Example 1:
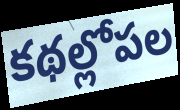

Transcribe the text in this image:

కథల్లోపల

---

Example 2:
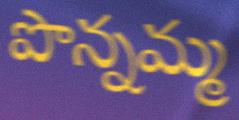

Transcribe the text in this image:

పొన్నమ్మ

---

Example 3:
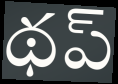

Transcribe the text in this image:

థప్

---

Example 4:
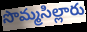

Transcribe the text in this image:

సొమ్మసిల్లారు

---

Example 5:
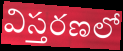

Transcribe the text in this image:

విస్తరణలో